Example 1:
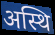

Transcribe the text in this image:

अस्थि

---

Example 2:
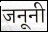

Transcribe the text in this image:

जनूनी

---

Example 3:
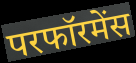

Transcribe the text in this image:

परफॉरमेंस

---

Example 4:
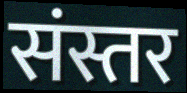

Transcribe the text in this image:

संस्तर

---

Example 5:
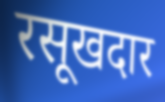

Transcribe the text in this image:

रसूखदार